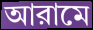
আরামে